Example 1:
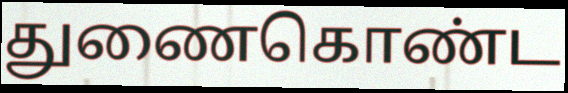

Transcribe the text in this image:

துணைகொண்ட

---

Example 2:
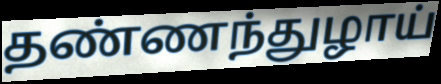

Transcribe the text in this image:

தண்ணந்துழாய்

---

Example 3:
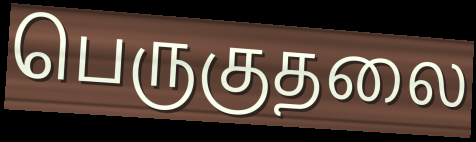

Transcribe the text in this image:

பெருகுதலை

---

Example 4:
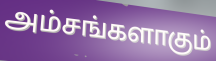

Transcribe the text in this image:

அம்சங்களாகும்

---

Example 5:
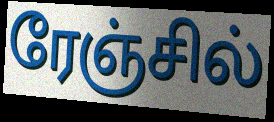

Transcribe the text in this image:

ரேஞ்சில்